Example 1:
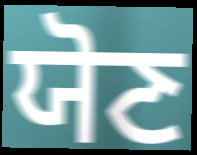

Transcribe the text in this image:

ਯੋਣ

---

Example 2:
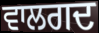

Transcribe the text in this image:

ਵਾਲਗਦ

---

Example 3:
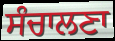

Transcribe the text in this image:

ਸੰਚਾਲਣਾ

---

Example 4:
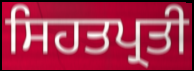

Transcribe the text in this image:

ਸਿਹਤਪ੍ਰਤੀ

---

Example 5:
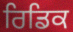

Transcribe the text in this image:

ਰਿਡਿਕ